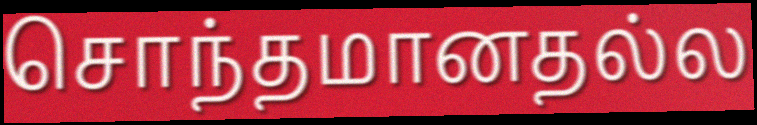
சொந்தமானதல்ல